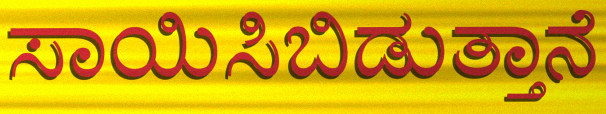
ಸಾಯಿಸಿಬಿಡುತ್ತಾನೆ